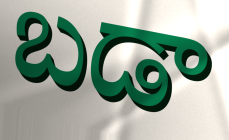
బడా